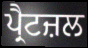
ਪ੍ਰੈਟਜ਼ਲ